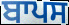
ਬਾਪਸ